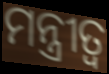
ମନ୍ତ୍ରୀତ୍ୱ